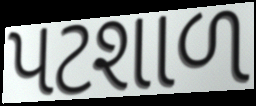
પટશાળ